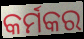
କର୍ମକର